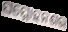
ସମ୍ମୋହନଶର